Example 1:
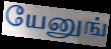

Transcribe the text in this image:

யேனுங்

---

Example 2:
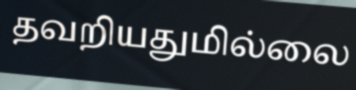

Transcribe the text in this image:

தவறியதுமில்லை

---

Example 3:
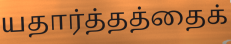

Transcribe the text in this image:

யதார்த்தத்தைக்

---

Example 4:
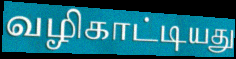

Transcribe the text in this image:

வழிகாட்டியது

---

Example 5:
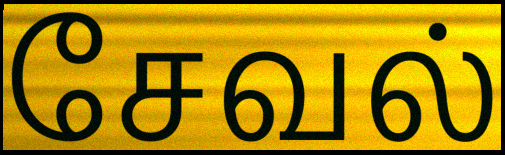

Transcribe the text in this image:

சேவல்